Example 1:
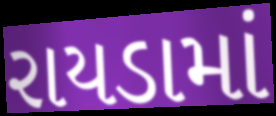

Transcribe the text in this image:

રાયડામાં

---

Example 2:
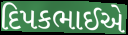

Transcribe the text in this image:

દિપકભાઈએ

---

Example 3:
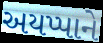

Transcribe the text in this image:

અયપ્પાને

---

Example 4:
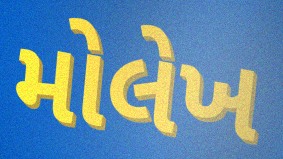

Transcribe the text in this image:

મોલેખ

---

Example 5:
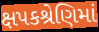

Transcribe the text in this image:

ક્ષપકશ્રેણિમાં